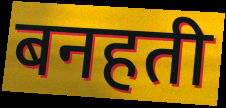
बनहती